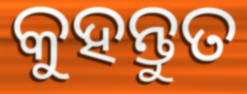
କୁହନ୍ତୁତ